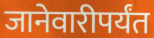
जानेवारीपर्यंत